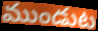
ముండుట